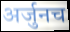
अर्जुनच